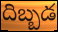
దిబ్బడ